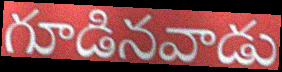
గూడినవాడు